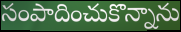
సంపాదించుకొన్నాను